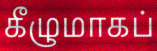
கீழுமாகப்